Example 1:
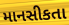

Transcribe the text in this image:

માનસીકતા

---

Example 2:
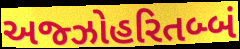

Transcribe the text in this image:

અજ્ઝોહરિતબ્બં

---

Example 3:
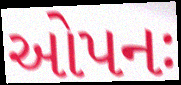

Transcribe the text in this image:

ઓપનઃ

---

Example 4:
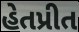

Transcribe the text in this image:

હેતપ્રીત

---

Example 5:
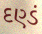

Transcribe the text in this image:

દણ્ડં